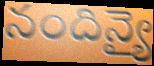
నందిన్యై